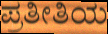
ಪ್ರತೀತಿಯ